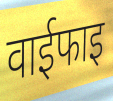
वाईफाइ